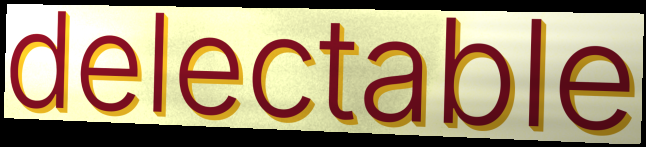
delectable